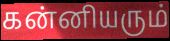
கன்னியரும்